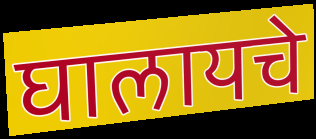
घालायचे